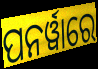
ପନର୍ୱାରେ